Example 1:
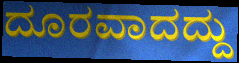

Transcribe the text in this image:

ದೂರವಾದದ್ದು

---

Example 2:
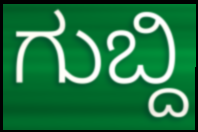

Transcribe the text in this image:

ಗುಬ್ದಿ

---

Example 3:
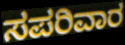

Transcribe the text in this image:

ಸಪರಿವಾರ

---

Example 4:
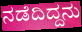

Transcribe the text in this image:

ನಡೆದಿದ್ದನು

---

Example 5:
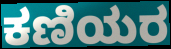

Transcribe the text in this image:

ಕಣಿಯರ